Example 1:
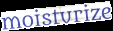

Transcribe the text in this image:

moisturize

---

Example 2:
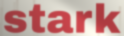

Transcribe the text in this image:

stark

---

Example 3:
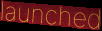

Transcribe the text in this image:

launched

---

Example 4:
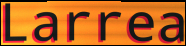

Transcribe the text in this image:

Larrea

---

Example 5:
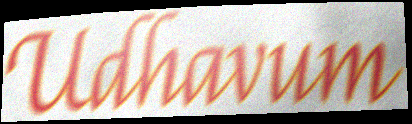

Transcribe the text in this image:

Udhavum